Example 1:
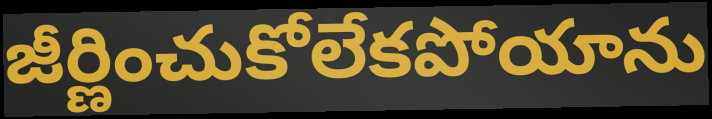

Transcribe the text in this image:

జీర్ణించుకోలేకపోయాను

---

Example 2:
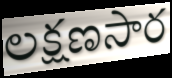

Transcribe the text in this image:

లక్షణసార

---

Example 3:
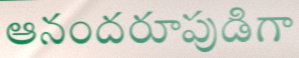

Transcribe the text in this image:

ఆనందరూపుడిగా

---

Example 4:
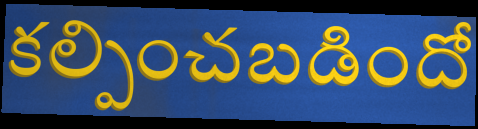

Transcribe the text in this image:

కల్పించబడిందో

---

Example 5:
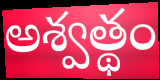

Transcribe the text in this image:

అశ్వత్థం